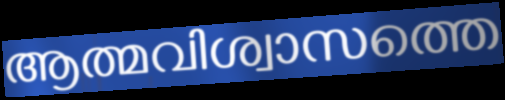
ആത്മവിശ്വാസത്തെ